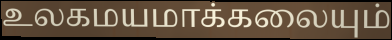
உலகமயமாக்கலையும்